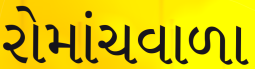
રોમાંચવાળા